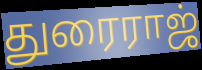
துரைராஜ்